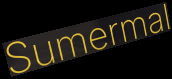
Sumermal